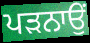
ਪਡ਼ਨਾਉਂ